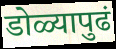
डोळ्यापुढं